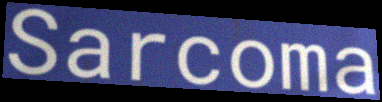
Sarcoma